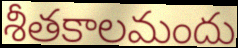
శీతకాలమందు